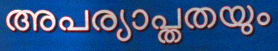
അപര്യാപ്തതയും